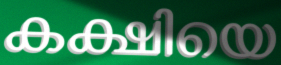
കക്ഷിയെ